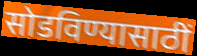
सोडविण्यासाठीं